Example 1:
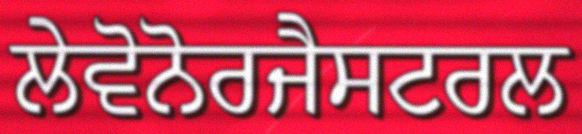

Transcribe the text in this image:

ਲੇਵੋਨੋਰਜੈਸਟਰਲ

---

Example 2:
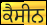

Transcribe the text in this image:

ਕੈਸੀਨ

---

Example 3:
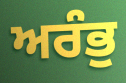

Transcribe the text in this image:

ਅਰੰਭੁ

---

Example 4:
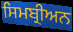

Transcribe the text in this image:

ਸਿਮਬ੍ਰੀਅਨ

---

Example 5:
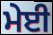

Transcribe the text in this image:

ਮੇਈ